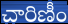
చారిణీం